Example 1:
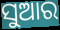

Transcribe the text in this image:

ସୁଆର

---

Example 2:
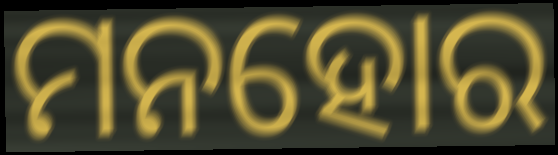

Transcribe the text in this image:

ମନହୋର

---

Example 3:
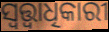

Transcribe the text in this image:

ସ୍ବତ୍ତ୍ବାଧିକାରୀ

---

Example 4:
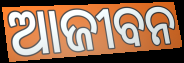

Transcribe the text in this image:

ଆଜୀବନ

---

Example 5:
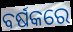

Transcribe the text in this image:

ବର୍ଷକରେ